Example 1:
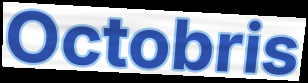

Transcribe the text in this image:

Octobris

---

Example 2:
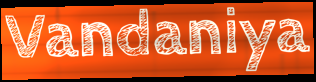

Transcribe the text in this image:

Vandaniya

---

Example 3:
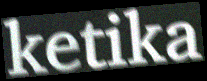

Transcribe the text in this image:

ketika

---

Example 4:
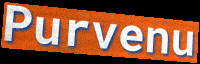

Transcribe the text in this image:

Purvenu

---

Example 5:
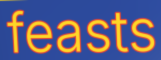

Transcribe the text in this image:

feasts